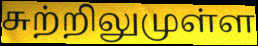
சுற்றிலுமுள்ள